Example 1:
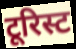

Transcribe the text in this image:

टूरिस्ट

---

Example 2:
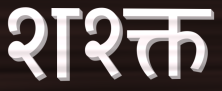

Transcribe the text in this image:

शश्क्त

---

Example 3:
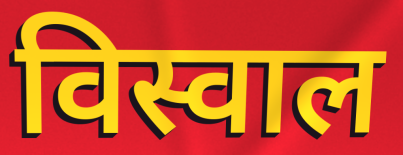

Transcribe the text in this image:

विस्वाल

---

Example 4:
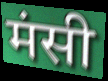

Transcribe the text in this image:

मंसी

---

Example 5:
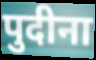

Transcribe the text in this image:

पुदीना